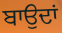
ਬਾਉਦਾਂ